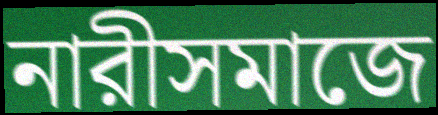
নারীসমাজে